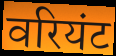
वरियंट